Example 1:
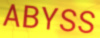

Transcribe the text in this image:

ABYSS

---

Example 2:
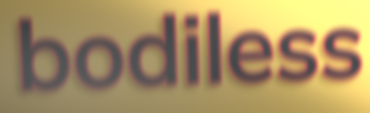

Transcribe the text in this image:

bodiless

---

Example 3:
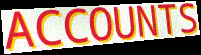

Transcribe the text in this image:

ACCOUNTS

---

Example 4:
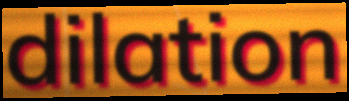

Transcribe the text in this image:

dilation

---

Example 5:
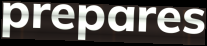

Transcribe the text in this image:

prepares